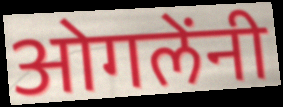
ओगलेंनी